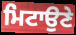
ਮਿਟਾਉਣੇ